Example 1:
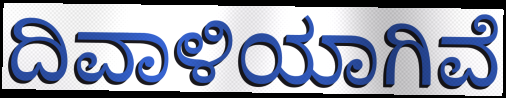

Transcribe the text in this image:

ದಿವಾಳಿಯಾಗಿವೆ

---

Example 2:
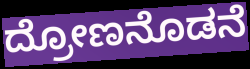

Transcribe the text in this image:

ದ್ರೋಣನೊಡನೆ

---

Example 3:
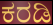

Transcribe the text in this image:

ಕರಡಿ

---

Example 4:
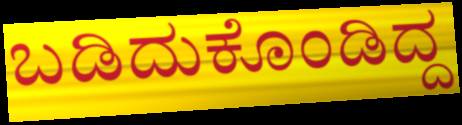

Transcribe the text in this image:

ಬಡಿದುಕೊಂಡಿದ್ದ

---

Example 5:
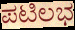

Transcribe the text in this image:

ಪಟಿಲಭ